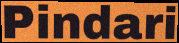
Pindari